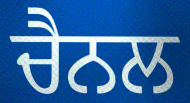
ਚੈਨਲ